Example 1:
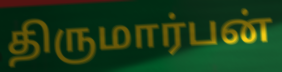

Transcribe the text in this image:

திருமார்பன்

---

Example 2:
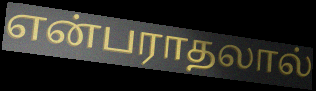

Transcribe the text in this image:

என்பராதலால்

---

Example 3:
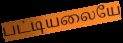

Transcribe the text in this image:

பட்டியலையே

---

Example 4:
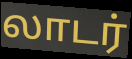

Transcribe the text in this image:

லாடர்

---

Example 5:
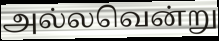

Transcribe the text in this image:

அல்லவென்று